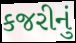
કજરીનું